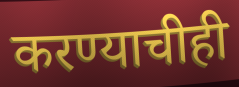
करण्याचीही